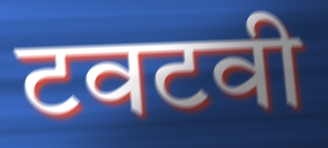
टवटवी